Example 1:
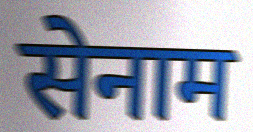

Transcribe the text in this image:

सेनाम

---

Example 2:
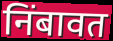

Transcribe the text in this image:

निंबावत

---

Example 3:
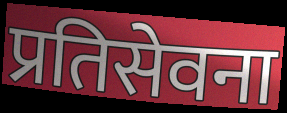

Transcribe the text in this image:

प्रतिसेवना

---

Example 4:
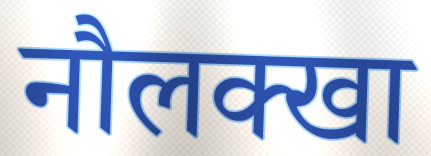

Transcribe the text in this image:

नौलक्खा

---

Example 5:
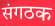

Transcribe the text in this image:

संगठक